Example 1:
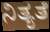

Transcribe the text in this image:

ನಿತ್ಯತೆ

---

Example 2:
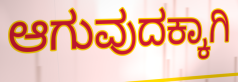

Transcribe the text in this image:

ಆಗುವುದಕ್ಕಾಗಿ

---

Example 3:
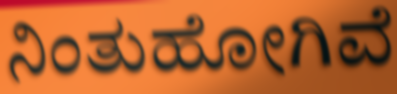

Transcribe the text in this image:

ನಿಂತುಹೋಗಿವೆ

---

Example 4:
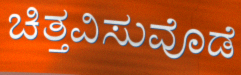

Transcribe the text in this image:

ಚಿತ್ತವಿಸುವೊಡೆ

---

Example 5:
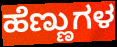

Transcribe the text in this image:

ಹೆಣ್ಣುಗಳ